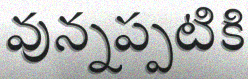
వున్నప్పటికి